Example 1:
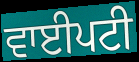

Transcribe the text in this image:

ਵਾਈਪਟੀ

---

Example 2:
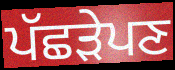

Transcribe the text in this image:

ਪੱਛੜੇਪਣ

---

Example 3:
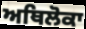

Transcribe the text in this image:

ਅਥਿਲੋਕਾ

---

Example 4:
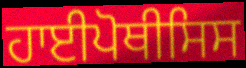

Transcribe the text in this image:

ਹਾਈਪੋਥੀਸਿਸ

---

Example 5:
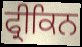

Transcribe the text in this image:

ਫ੍ਰੀਕਿਨ